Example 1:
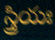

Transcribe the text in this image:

స్త్రియః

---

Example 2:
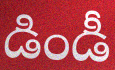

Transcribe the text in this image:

డిండీ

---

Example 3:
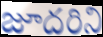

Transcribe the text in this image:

జూదరిని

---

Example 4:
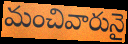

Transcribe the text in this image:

మంచివారునై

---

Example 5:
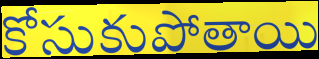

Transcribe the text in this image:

కోసుకుపోతాయి